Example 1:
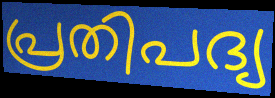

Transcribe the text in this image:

പ്രതിപദ്യ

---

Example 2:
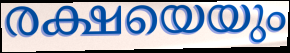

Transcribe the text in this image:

രക്ഷയെയും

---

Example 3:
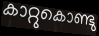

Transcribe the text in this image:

കാറ്റുകൊണ്ടു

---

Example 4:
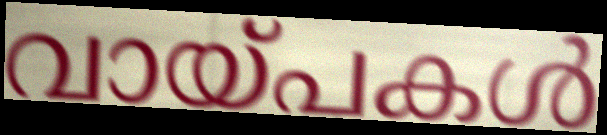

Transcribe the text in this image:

വായ്പകൾ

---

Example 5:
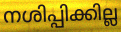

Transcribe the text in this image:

നശിപ്പിക്കില്ല